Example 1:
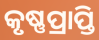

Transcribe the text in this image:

କୃଷ୍ଣପ୍ରାପ୍ତି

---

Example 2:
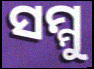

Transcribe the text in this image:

ସମ୍ମୁ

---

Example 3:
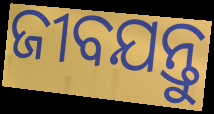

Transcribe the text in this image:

ଜୀବଯନ୍ତୁ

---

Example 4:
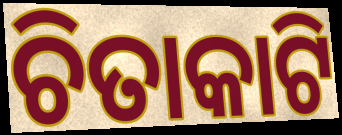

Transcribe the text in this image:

ଚିତାକାଟି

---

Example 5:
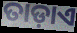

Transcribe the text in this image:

ତାଡ଼ାଏ